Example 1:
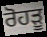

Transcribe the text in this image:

ਰੋਹੜੂ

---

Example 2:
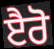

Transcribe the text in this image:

ੲੈਰੋ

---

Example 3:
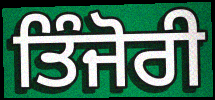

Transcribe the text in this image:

ਤਿੰਜੋਰੀ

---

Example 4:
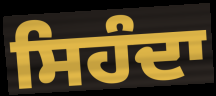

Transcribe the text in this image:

ਸਿਹੰਦਾ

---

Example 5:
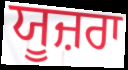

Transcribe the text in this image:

ਯੂਜ਼ਰਾ